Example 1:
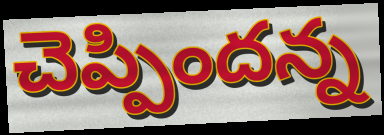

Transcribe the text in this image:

చెప్పిందన్న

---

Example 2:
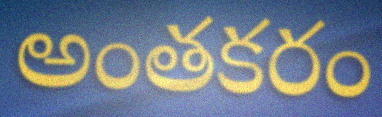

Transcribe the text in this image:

అంతకరం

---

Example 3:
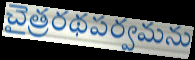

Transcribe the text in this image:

చైత్రరథపర్వమను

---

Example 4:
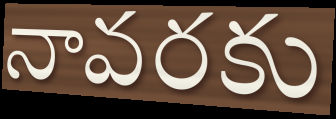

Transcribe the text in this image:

నావరకు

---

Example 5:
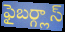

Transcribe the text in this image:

ఫైబర్గ్లాస్